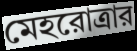
মেহরোত্রার